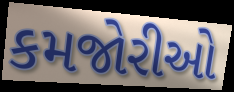
કમજોરીઓ